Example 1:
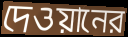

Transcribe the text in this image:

দেওয়ানের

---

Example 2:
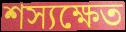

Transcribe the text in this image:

শস্যক্ষেত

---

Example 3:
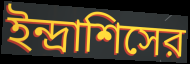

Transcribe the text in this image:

ইন্দ্রাশিসের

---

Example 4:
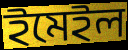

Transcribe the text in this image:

ইমেইল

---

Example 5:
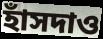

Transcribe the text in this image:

হাঁসদাও